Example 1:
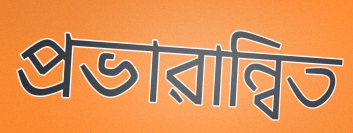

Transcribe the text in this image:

প্ৰভাৱান্বিত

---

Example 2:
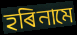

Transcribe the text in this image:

হৰিনামে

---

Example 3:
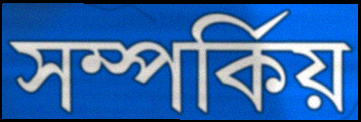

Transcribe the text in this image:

সম্পৰ্কিয়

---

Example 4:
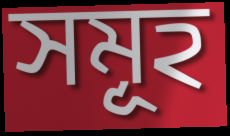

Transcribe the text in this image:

সমূহ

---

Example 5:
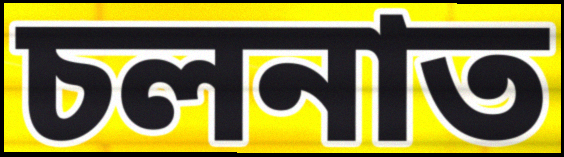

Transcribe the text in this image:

চলনাত